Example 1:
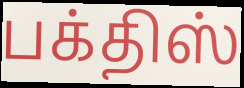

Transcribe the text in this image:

பக்திஸ்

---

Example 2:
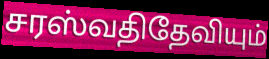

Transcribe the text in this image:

சரஸ்வதிதேவியும்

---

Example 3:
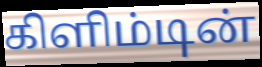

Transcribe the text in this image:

கிளிம்டின்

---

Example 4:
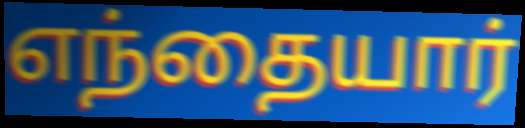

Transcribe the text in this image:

எந்தையார்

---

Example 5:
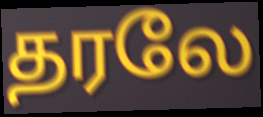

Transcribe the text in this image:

தரலே